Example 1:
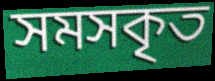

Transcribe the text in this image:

সমসকৃত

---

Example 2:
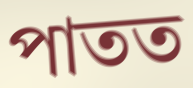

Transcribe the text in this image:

পাতত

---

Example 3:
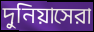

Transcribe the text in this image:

দুনিয়াসেরা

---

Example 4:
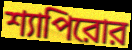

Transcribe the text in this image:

শ্যাপিরোর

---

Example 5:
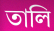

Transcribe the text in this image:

তালি